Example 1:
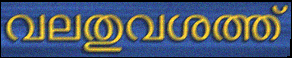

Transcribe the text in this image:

വലതുവശത്ത്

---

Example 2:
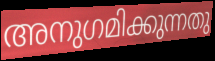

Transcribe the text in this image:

അനുഗമിക്കുന്നതു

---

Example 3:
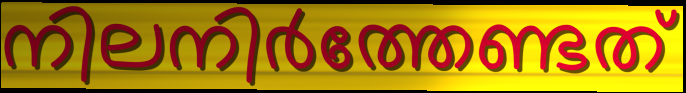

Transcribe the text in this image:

നിലനിർത്തേണ്ടത്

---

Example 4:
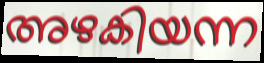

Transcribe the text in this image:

അഴകിയന്ന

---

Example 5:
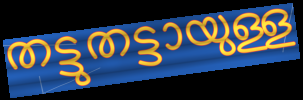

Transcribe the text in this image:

തട്ടുതട്ടായുള്ള